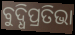
ବୁଦ୍ଧିପ୍ରତିଭା